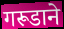
गरूडाने